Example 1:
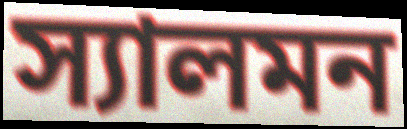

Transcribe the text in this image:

স্যালমন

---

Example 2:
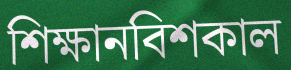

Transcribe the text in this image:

শিক্ষানবিশকাল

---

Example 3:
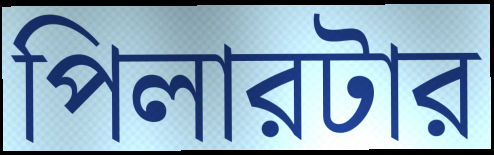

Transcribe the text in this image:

পিলারটার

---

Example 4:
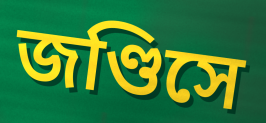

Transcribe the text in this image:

জণ্ডিসে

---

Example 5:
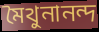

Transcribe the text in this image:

মৈথুনানন্দ